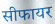
सीफायर